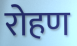
रोहण